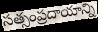
సత్సంప్రదాయాన్ని